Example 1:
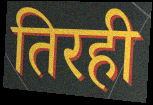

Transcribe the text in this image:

तिरही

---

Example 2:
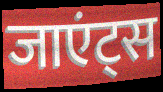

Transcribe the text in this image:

जाएंट्स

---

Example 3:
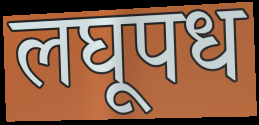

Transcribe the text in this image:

लघूपध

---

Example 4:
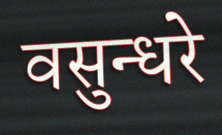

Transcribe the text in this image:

वसुन्धरे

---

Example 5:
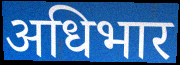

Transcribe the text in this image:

अधिभार